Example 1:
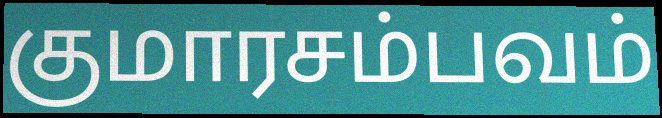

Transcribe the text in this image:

குமாரசம்பவம்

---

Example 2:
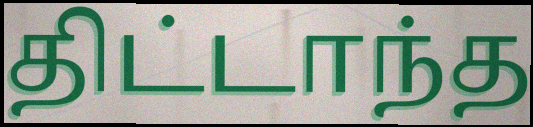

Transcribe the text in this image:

திட்டாந்த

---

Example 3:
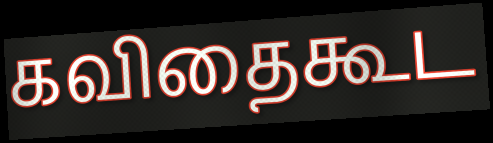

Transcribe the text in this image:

கவிதைகூட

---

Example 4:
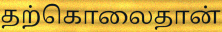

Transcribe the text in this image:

தற்கொலைதான்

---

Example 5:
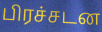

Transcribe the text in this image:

பிரச்சடன